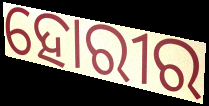
ହୋରୀର